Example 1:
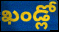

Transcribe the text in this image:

ఖండ్లో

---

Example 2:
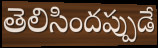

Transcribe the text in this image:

తెలిసిందప్పుడే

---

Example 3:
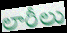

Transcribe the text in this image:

లారీలు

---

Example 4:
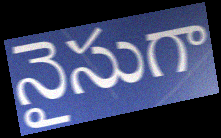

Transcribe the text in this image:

నైసుగా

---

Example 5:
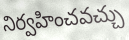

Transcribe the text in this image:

నిర్వహించవచ్చు